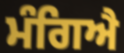
ਮੰਗਿਐ